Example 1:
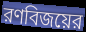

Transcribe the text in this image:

রণবিজয়ের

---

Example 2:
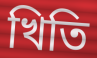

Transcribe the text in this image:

খিতি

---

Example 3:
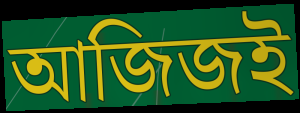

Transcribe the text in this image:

আজিজই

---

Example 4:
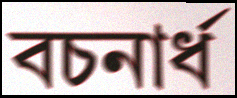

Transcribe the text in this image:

বচনার্ধ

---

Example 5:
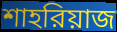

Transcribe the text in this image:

শাহরিয়াজ